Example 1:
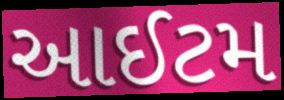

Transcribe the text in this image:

આઈટમ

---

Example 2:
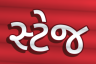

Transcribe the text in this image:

સ્ટેજ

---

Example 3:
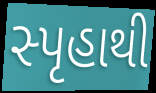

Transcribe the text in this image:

સ્પૃહાથી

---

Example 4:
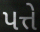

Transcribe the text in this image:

પત્તે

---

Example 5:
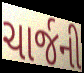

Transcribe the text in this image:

ચાર્જની